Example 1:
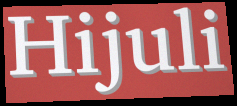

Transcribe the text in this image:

Hijuli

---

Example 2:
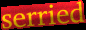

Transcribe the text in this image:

serried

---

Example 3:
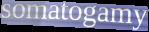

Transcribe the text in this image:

somatogamy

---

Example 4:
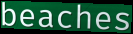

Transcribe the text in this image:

beaches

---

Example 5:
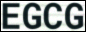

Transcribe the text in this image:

EGCG